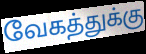
வேகத்துக்கு